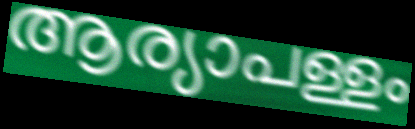
ആര്യാപള്ളം